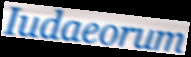
Iudaeorum